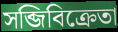
সব্জিবিক্রেতা